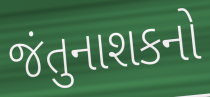
જંતુનાશકનો